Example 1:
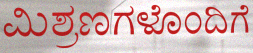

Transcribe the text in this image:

ಮಿಶ್ರಣಗಳೊಂದಿಗೆ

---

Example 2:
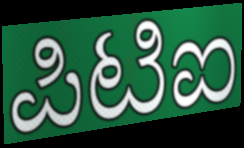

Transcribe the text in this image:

ಪಿಟಿಐ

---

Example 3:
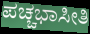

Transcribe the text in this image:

ಪಚ್ಚಭಾಸೀತಿ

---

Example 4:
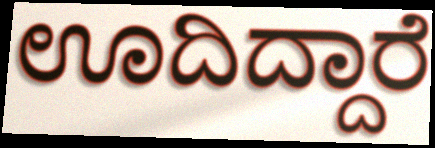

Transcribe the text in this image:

ಊದಿದ್ದಾರೆ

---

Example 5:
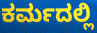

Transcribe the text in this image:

ಕರ್ಮದಲ್ಲಿ